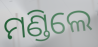
ମଣ୍ଡିଲେ